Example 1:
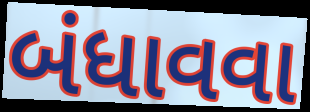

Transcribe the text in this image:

બંધાવવા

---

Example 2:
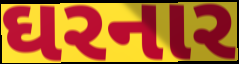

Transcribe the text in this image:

ઘરનાર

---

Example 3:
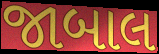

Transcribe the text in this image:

જાબાલ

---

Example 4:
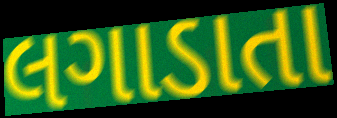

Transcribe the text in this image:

લગાડાતા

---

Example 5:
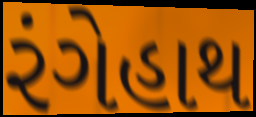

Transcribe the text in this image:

રંગેહાથ